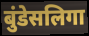
बुंडेसलिगा